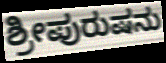
ಶ್ರೀಪುರುಷನು